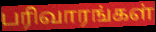
பரிவாரங்கள்